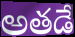
అతడే